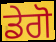
ਡੇਗੋ